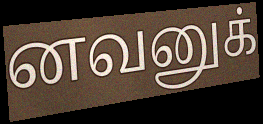
னவனுக்